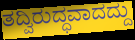
ತದ್ವಿರುದ್ಧವಾದದ್ದು